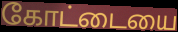
கோட்டையை